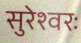
सुरेश्वरः